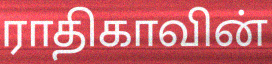
ராதிகாவின்